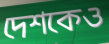
দেশকেও